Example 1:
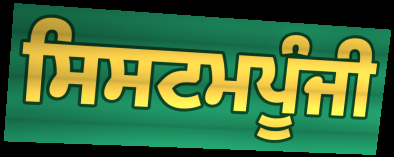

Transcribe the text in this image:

ਸਿਸਟਮਪੂੰਜੀ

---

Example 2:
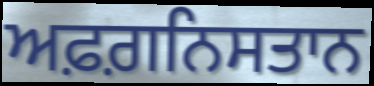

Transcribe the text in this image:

ਅਫ਼ਗ਼ਨਿਸਤਾਨ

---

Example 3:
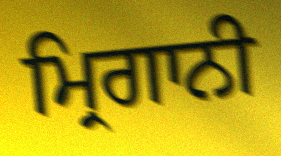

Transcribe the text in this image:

ਮ੍ਰਿਗਾਨੀ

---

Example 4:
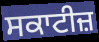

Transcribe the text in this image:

ਸਕਾਟੀਜ਼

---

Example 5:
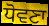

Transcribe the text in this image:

ਧੋਵਣਾ